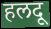
हलदू